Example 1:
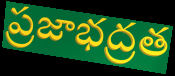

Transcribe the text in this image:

ప్రజాభద్రత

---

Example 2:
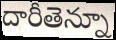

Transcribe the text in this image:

దారీతెన్నూ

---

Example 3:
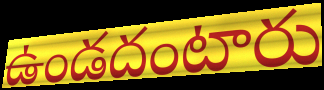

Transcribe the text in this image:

ఉండదంటారు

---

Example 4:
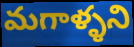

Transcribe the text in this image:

మగాళ్ళని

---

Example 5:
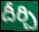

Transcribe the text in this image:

దీర్చి